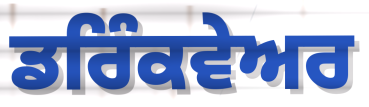
ਡਰਿੰਕਵੇਅਰ